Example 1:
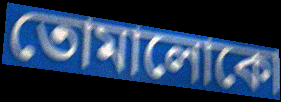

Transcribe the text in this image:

তোমালোকো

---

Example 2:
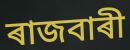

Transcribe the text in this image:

ৰাজবাৰী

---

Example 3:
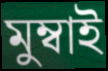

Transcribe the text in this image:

মুম্বাই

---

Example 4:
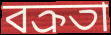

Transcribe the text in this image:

বক্ৰতা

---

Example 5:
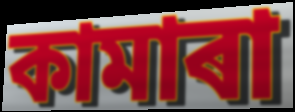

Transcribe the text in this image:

কামাৰা